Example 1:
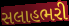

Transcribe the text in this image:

સલાહભરી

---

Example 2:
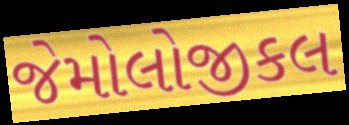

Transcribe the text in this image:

જેમોલોજીકલ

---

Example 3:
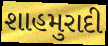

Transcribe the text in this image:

શાહમુરાદી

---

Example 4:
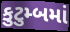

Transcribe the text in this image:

કુટુમ્બમાં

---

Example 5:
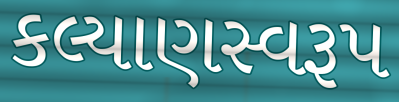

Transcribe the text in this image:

કલ્યાણસ્વરૂપ